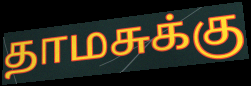
தாமசுக்கு